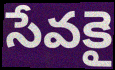
సేవకై